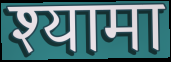
श्यामा